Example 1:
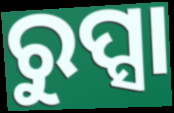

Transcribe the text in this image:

ରୁପ୍ସା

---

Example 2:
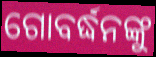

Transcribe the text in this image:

ଗୋବର୍ଦ୍ଧନଙ୍କୁ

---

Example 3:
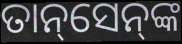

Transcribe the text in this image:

ତାନ୍‌ସେନ୍‌ଙ୍କ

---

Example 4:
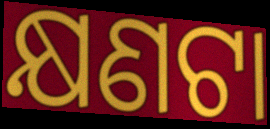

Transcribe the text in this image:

କ୍ଷଣଟା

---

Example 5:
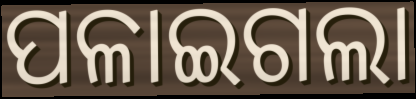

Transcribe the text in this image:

ପଳାଇଗଲା